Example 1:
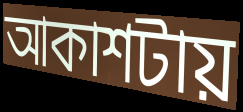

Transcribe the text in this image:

আকাশটায়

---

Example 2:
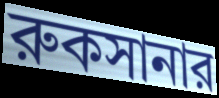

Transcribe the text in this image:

রুকসানার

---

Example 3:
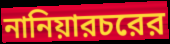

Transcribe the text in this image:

নানিয়ারচরের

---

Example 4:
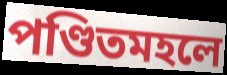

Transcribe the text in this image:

পণ্ডিতমহলে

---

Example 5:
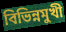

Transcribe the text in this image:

বিভিন্নমুখী